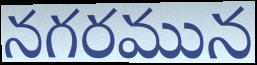
నగరమున